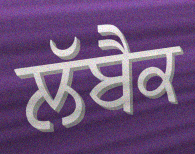
ਲੱਬੈਕ